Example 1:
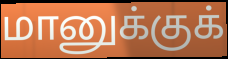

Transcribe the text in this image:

மானுக்குக்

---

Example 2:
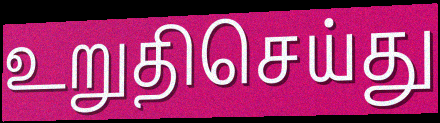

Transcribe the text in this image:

உறுதிசெய்து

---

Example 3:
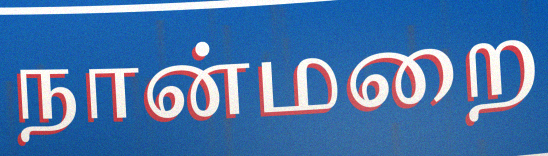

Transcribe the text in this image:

நான்மறை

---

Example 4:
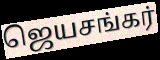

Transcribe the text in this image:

ஜெயசங்கர்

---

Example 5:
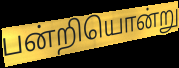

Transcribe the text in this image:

பன்றியொன்று